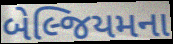
બેલ્જિયમના